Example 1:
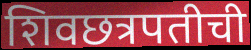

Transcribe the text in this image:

शिवछत्रपतीची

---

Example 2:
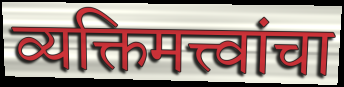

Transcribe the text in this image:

व्यक्तिमत्त्वांचा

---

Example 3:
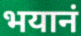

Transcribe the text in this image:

भयानं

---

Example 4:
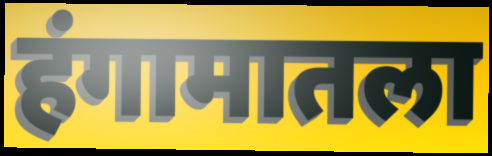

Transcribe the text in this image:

हंगामातला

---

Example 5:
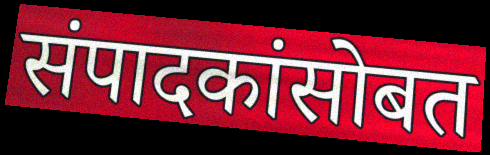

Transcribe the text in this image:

संपादकांसोबत